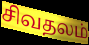
சிவதலம்